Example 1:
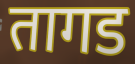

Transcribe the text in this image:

तागड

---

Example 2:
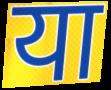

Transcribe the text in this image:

या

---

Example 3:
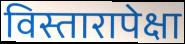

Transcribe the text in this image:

विस्तारापेक्षा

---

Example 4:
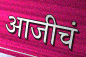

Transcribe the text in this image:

आजीचं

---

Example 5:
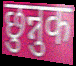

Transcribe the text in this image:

छुन्नुक